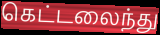
கெட்டலைந்து